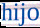
hijo